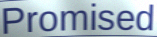
Promised